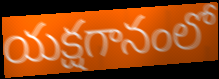
యక్షగానంలో